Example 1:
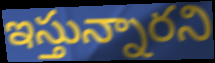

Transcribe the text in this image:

ఇస్తున్నారని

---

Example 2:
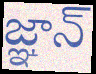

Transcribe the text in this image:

జ్ఞాన్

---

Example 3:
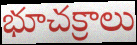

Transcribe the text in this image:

భూచక్రాలు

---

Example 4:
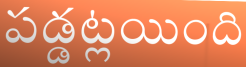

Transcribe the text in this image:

పడ్డట్లయింది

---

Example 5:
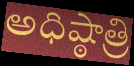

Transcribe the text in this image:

అధిష్ఠాత్రి